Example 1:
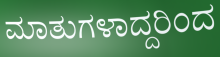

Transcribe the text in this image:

ಮಾತುಗಳಾದ್ದರಿಂದ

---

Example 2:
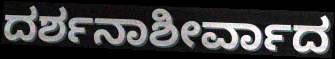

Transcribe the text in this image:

ದರ್ಶನಾಶೀರ್ವಾದ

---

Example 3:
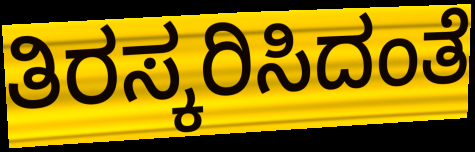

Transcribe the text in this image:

ತಿರಸ್ಕರಿಸಿದಂತೆ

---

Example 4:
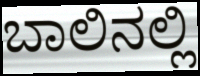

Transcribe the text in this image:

ಬಾಲಿನಲ್ಲಿ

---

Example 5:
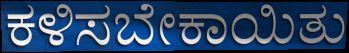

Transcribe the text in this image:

ಕಳಿಸಬೇಕಾಯಿತು